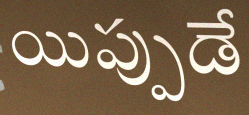
యిప్పుడే